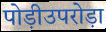
पोड़ीउपरोड़ा